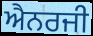
ਐਨਰਜੀ